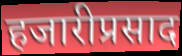
हजारीप्रसाद